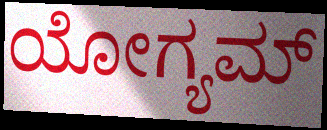
ಯೋಗ್ಯಮ್